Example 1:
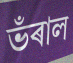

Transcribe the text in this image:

ভঁৰাল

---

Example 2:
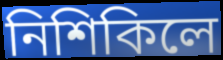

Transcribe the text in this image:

নিশিকিলে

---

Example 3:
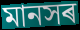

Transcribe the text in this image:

মানসৰ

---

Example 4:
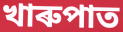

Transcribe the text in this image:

খাৰুপাত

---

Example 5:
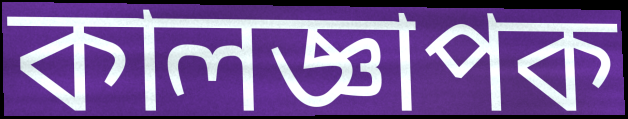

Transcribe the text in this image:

কালজ্ঞাপক